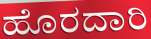
ಹೊರದಾರಿ